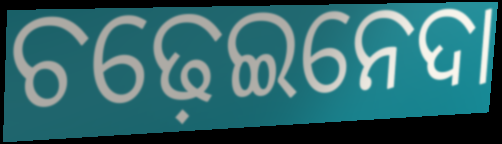
ଚଢ଼େଇନେଦା